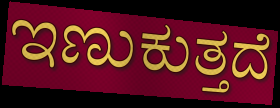
ಇಣುಕುತ್ತದೆ